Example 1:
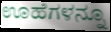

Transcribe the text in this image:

ಊಹೆಗಳನ್ನೂ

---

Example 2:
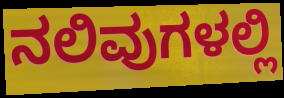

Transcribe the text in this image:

ನಲಿವುಗಳಲ್ಲಿ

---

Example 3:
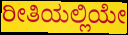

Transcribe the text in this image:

ರೀತಿಯಲ್ಲಿಯೇ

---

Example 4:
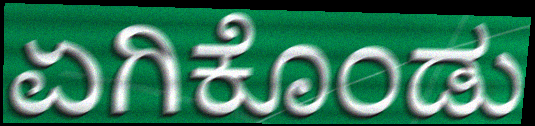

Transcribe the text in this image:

ಏಗಿಕೊಂಡು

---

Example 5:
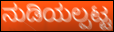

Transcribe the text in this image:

ನುಡಿಯಲ್ಪಟ್ಟ